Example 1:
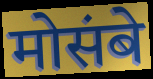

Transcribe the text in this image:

मोसंबे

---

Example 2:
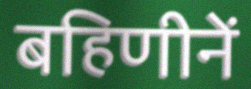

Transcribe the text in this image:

बहिणीनें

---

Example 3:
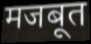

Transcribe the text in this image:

मजबूत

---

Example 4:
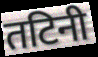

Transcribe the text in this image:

तटिनी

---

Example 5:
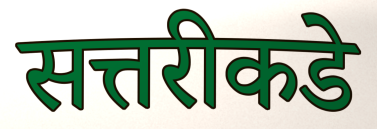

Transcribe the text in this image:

सत्तरीकडे